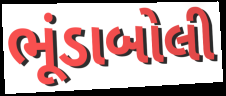
ભૂંડાબોલી